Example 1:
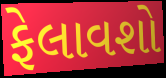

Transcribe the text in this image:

ફેલાવશો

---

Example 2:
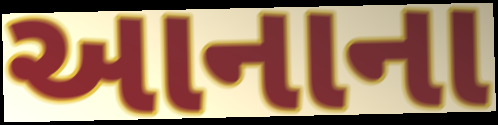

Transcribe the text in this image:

આનાના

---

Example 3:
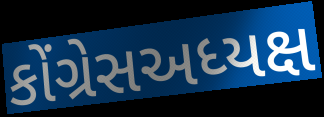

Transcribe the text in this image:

કોંગ્રેસઅધ્યક્ષ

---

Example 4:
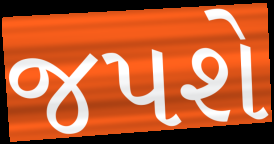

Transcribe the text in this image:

જપશે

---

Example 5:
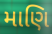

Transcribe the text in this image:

માણિ